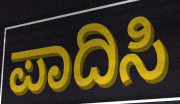
ಪಾದಿಸಿ